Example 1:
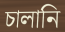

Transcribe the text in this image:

চালানি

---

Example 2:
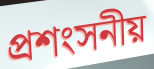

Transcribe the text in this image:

প্রশংসনীয়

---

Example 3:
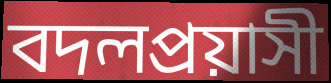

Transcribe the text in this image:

বদলপ্রয়াসী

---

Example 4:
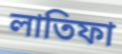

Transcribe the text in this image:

লাতিফা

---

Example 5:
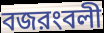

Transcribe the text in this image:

বজরংবলী